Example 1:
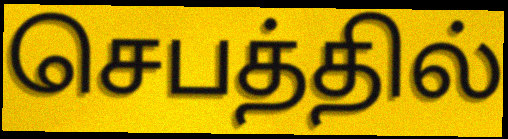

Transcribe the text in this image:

செபத்தில்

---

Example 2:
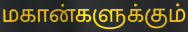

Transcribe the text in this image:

மகான்களுக்கும்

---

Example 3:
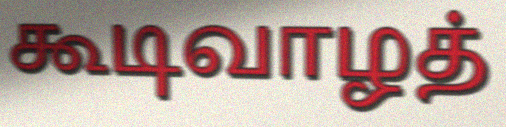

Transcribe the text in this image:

கூடிவாழத்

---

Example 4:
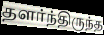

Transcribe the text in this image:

தளர்ந்திருந்த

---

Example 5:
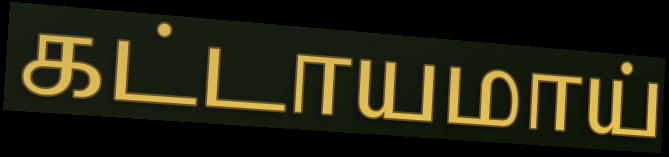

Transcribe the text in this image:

கட்டாயமாய்